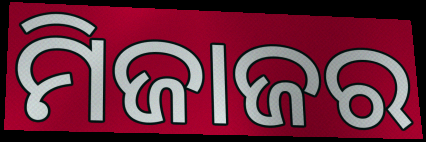
ମିଜାଜର